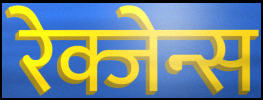
रेक्जेन्स